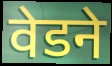
वेडने